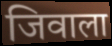
जिवाला